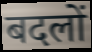
बदलों